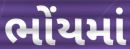
ભોંયમાં